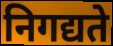
निगद्यते